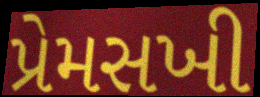
પ્રેમસખી